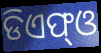
ଡିଏଫ୍ଓ